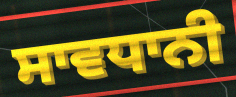
ਸਾਵਧਾਨੀ